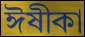
ঈষীকা